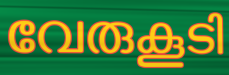
വേരുകൂടി